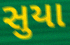
સુયા